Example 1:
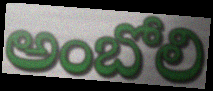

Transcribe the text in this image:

అంబోలి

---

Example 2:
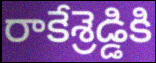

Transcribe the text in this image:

రాకేశ్రెడ్డికి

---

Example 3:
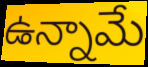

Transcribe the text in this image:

ఉన్నామే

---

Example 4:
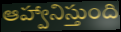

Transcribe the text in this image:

ఆహ్వానిస్తుంది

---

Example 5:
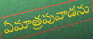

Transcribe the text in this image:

ఏమాత్రపువాడను